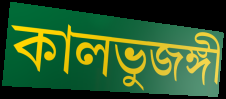
কালভুজঙ্গী